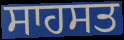
ਸਾਹਸਤ